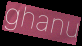
ghanu